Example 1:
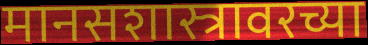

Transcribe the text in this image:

मानसशास्त्रावरच्या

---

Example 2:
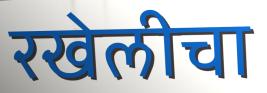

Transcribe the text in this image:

रखेलीचा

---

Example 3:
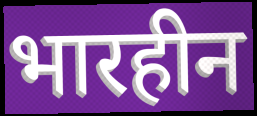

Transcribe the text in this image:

भारहीन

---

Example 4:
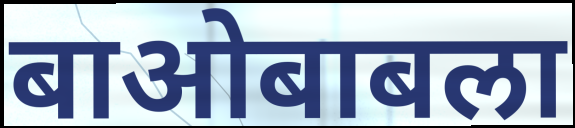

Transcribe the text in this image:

बाओबाबला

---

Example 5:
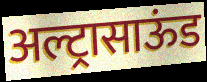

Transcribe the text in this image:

अल्ट्रासाऊंड